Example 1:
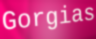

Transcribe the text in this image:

Gorgias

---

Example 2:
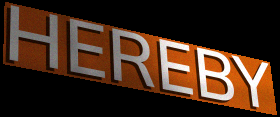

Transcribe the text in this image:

HEREBY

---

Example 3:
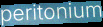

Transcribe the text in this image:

peritonium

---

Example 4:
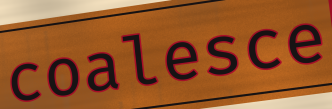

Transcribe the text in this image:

coalesce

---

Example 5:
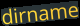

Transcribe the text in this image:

dirname